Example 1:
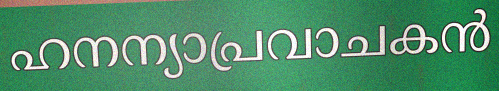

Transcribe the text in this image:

ഹനന്യാപ്രവാചകൻ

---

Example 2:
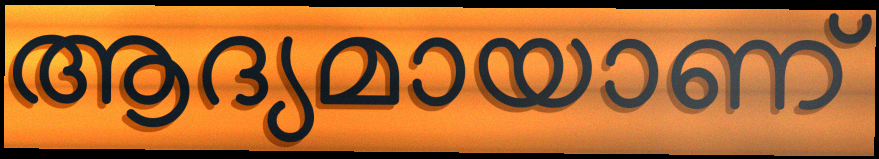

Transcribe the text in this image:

ആദ്യമായാണ്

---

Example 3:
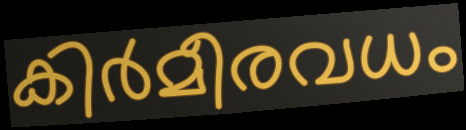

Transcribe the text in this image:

കിർമീരവധം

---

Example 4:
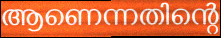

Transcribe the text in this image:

ആണെന്നതിന്റെ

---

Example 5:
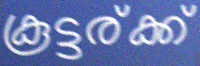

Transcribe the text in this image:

കൂട്ടര്ക്ക്